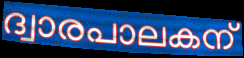
ദ്വാരപാലകന്